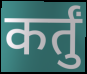
कर्तुं